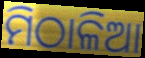
ମିଠାଳିଆ